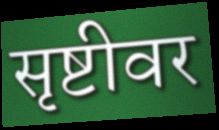
सृष्टीवर